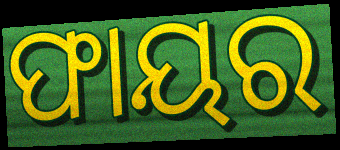
ଫାୟର